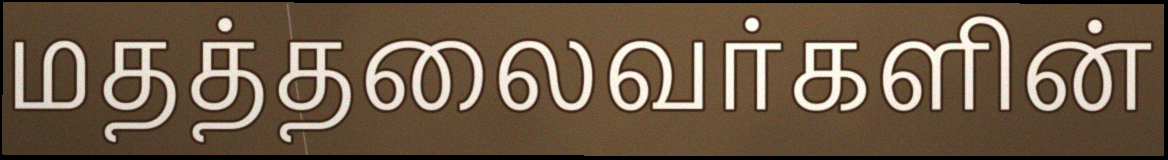
மதத்தலைவர்களின்